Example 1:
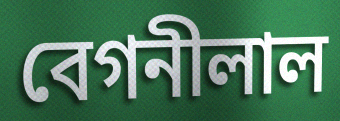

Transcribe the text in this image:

বেগনীলাল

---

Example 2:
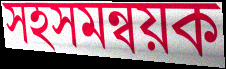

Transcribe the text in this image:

সহসমন্বয়ক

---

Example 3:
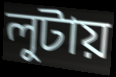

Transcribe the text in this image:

লুটায়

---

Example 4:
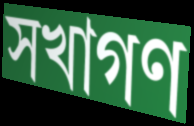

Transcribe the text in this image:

সখাগণ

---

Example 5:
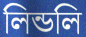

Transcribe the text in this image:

লিন্ডলি